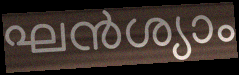
ഘൻശ്യാം